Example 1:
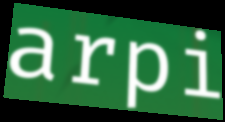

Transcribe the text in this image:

arpi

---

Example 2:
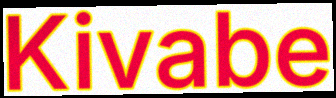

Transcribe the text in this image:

Kivabe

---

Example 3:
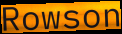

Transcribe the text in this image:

Rowson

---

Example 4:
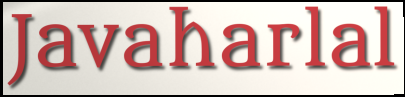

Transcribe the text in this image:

Javaharlal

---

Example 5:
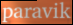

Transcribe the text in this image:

paravik